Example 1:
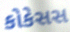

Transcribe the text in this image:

કોકેસસ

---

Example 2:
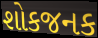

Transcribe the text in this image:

શોકજનક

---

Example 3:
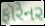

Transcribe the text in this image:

ફૉરેનર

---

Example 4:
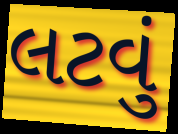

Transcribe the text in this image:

લટવું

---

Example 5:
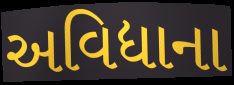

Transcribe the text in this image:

અવિદ્યાના